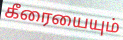
கீரையையும்